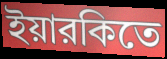
ইয়ারকিতে